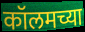
कॉलमच्या